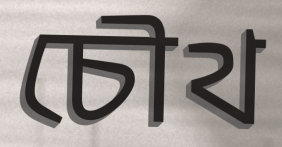
চৌথ